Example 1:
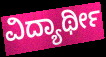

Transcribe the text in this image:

ವಿದ್ಯಾರ್ಥೀ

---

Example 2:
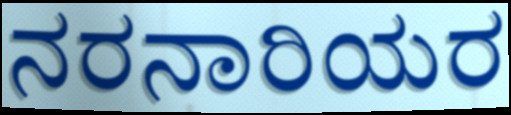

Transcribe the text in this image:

ನರನಾರಿಯರ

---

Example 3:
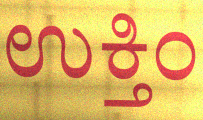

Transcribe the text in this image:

ಉಕ್ತಿಂ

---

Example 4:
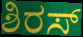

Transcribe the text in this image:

ಶಿರಸ್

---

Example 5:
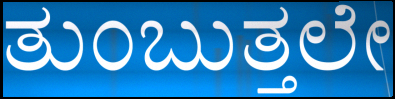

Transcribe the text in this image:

ತುಂಬುತ್ತಲೇ